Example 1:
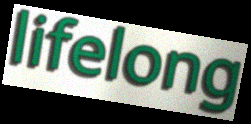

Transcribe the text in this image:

lifelong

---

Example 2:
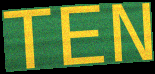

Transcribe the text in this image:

TEN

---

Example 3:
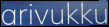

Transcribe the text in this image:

arivukku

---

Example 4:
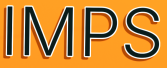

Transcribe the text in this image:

IMPS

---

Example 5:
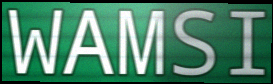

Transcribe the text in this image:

WAMSI